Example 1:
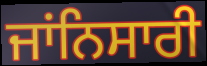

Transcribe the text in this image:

ਜਾਂਨਿਸਾਰੀ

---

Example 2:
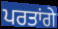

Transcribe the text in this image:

ਪਰਤਾਂਗੇ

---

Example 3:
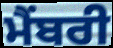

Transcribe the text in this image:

ਮੈਂਬਰੀ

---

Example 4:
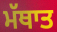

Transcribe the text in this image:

ਮੱਥਾਤ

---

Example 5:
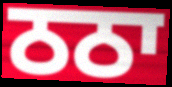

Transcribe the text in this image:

ਠਠਾ